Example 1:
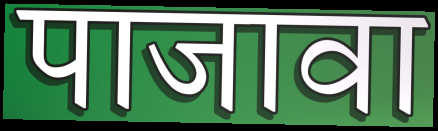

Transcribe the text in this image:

पाजावा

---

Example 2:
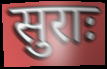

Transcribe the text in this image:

सुराः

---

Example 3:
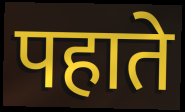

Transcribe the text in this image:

पहाते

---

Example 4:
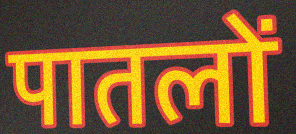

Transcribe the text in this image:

पातलों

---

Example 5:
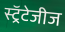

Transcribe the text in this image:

स्ट्रॅटेजीज